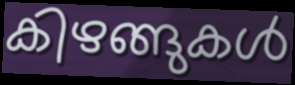
കിഴങ്ങുകൾ